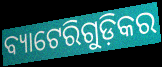
ବ୍ୟାଟେରିଗୁଡ଼ିକର